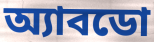
অ্যাবডো